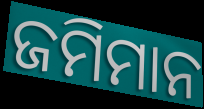
ଜମିମାନ